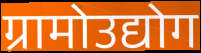
ग्रामोउद्योग